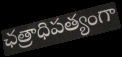
ఛత్రాధిపత్యంగా